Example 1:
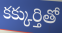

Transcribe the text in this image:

కక్కుర్తితో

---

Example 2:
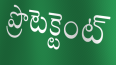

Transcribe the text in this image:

ప్రొటెక్టెంట్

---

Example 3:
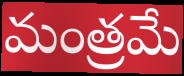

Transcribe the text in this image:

మంత్రమే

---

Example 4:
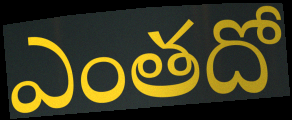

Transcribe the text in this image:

ఎంతదో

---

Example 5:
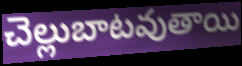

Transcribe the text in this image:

చెల్లుబాటవుతాయి